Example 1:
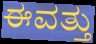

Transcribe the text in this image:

ಈವತ್ತು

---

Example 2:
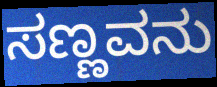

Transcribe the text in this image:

ಸಣ್ಣವನು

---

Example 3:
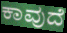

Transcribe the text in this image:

ಕಾವುದೆ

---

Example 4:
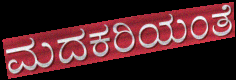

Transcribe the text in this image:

ಮದಕರಿಯಂತೆ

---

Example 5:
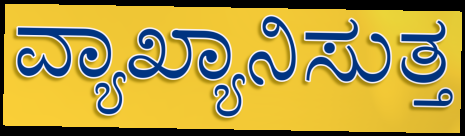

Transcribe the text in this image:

ವ್ಯಾಖ್ಯಾನಿಸುತ್ತ